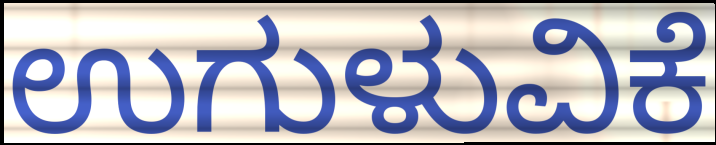
ಉಗುಳುವಿಕೆ